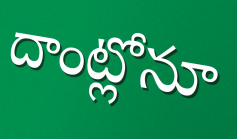
దాంట్లోనూ